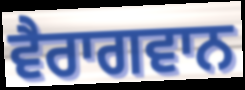
ਵੈਰਾਗਵਾਨ